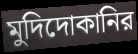
মুদিদোকানির